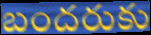
బందరుకు